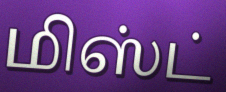
மிஸ்ட்